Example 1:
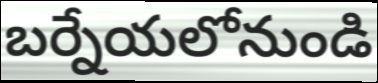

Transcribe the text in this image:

బర్నేయలోనుండి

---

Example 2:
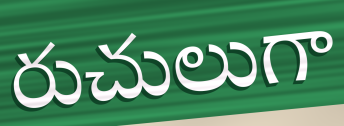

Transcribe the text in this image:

రుచులుగా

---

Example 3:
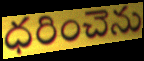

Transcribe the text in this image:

ధరించెను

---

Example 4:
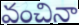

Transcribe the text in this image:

వంచినా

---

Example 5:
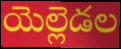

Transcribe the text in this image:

యెల్లెడల